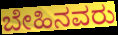
ಬೇಹಿನವರು